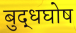
बुद्धघोष